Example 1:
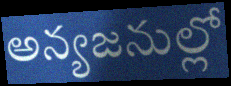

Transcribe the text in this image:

అన్యజనుల్లో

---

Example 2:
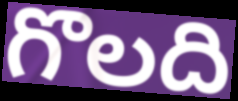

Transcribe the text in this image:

గొలది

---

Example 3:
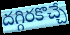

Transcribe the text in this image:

దగ్గిరకొచ్చే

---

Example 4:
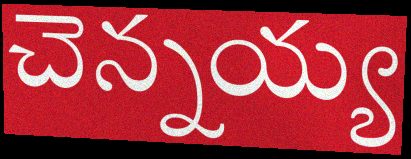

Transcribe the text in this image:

చెన్నయ్య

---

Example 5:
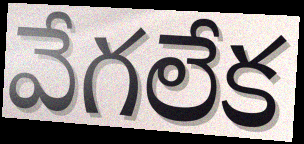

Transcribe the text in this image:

వేగలేక